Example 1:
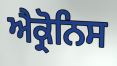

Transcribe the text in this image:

ਐਕ੍ਰੋਨਿਸ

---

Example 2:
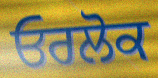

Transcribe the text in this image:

ਓਰਲੋਕ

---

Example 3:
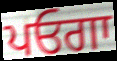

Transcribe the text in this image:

ਪਓਗਾ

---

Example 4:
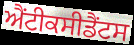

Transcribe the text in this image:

ਐਂਟੀਕਸੀਡੈਂਟਸ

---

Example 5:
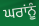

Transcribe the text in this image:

ਘਰਾਂਨੂੰ